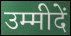
उम्मीदें